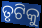
ତୃଟିକୁ